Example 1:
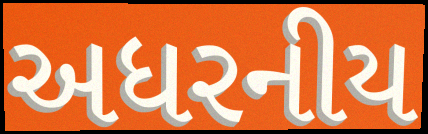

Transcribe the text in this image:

અધરનીય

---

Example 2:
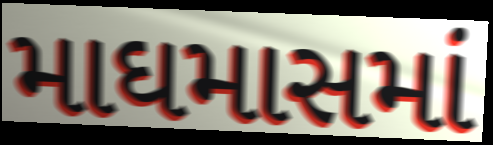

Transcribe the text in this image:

માઘમાસમાં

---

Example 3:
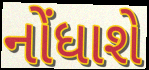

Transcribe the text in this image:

નોંધાશે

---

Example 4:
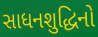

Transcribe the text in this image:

સાધનશુદ્ધિનો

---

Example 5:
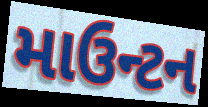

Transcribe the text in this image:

માઉન્ટન